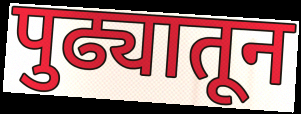
पुढ्यातून